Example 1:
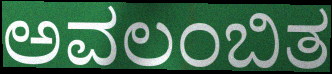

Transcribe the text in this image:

ಅವಲಂಬಿತ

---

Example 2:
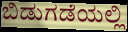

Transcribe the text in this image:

ಬಿಡುಗಡೆಯಲ್ಲಿ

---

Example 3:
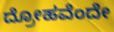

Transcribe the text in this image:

ದ್ರೋಹವೆಂದೇ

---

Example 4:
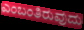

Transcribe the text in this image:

ಎಂಬಂತಿರುವುದು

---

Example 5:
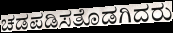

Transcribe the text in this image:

ಚಡಪಡಿಸತೊಡಗಿದರು